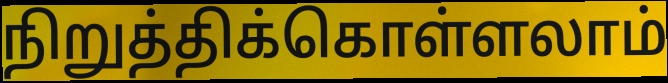
நிறுத்திக்கொள்ளலாம்